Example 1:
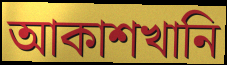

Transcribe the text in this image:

আকাশখানি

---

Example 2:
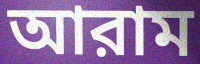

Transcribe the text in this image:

আরাম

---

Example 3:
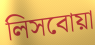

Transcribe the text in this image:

লিসবোয়া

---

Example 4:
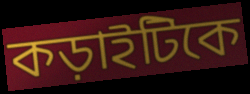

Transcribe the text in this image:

কড়াইটিকে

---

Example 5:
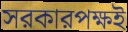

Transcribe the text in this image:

সরকারপক্ষই